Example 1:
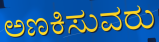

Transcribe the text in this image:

ಅಣಕಿಸುವರು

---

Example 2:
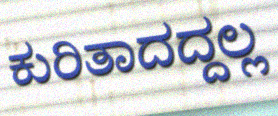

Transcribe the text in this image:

ಕುರಿತಾದದ್ದಲ್ಲ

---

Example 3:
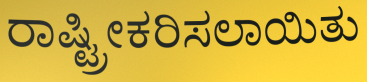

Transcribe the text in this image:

ರಾಷ್ಟ್ರೀಕರಿಸಲಾಯಿತು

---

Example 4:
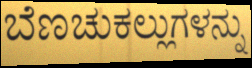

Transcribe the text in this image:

ಬೆಣಚುಕಲ್ಲುಗಳನ್ನು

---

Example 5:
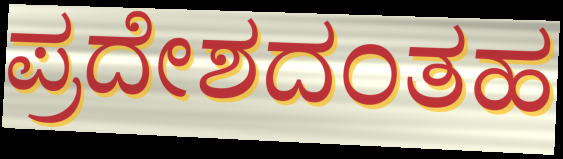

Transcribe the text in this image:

ಪ್ರದೇಶದಂತಹ